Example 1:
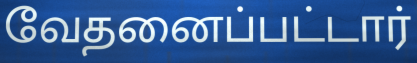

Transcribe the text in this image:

வேதனைப்பட்டார்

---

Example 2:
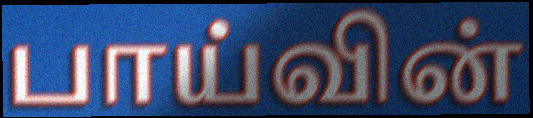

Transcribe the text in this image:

பாய்வின்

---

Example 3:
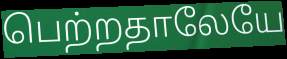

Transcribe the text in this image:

பெற்றதாலேயே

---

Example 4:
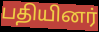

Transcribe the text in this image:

பதியினர்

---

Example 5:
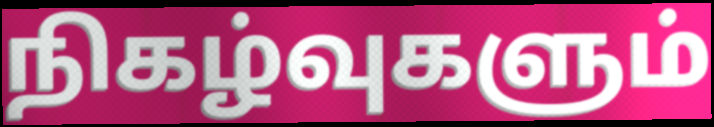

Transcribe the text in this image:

நிகழ்வுகளும்